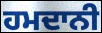
ਹਮਦਾਨੀ